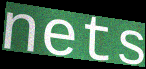
nets